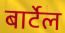
बार्टेल